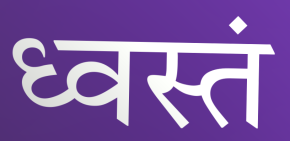
ध्वस्तं